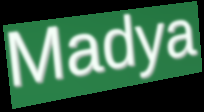
Madya